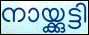
നായ്ക്കുട്ടി